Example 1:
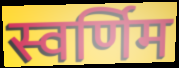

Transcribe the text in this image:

स्वर्णिम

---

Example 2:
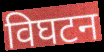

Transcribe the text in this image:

विघटन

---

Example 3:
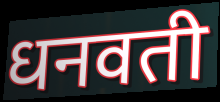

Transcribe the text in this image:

धनवती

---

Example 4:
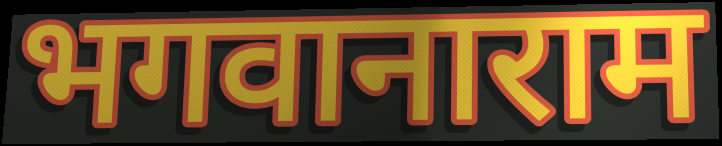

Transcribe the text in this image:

भगवानाराम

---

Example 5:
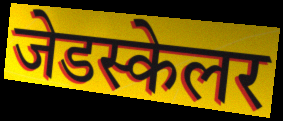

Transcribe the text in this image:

जेडस्केलर